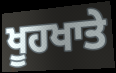
ਖੂਹਖਾਤੇ